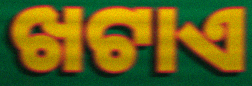
ଖଟାଏ